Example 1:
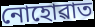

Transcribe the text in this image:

নোহোৱাত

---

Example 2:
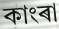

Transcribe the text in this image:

কাংৰা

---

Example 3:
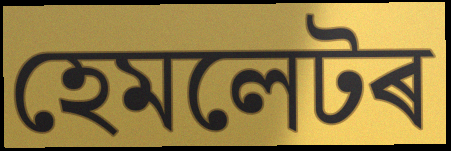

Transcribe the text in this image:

হেমলেটৰ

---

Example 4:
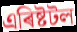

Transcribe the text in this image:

এৰিষ্টটল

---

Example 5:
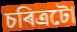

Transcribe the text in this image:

চৰিত্ৰটো